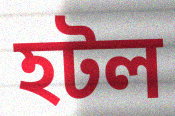
হটল